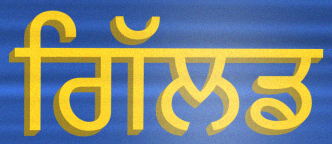
ਗਿੱਲਡ